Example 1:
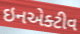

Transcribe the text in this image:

ઇનએક્ટીવ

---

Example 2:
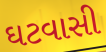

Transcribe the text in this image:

ઘટવાસી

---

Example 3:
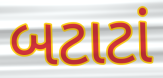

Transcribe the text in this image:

બટાટાં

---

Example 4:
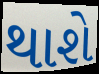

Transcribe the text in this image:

થાશે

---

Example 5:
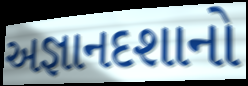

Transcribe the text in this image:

અજ્ઞાનદશાનો